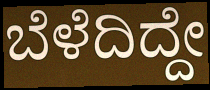
ಬೆಳೆದಿದ್ದೇ